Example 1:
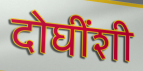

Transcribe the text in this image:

दोघींशी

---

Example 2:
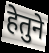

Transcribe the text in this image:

हेतुने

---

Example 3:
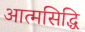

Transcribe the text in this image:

आत्मसिद्धि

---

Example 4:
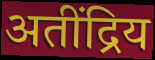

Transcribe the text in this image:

अतींद्रिय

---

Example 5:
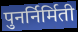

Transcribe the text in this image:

पुनर्निर्मिती